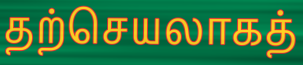
தற்செயலாகத்